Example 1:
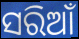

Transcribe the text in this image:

ସରିଆଁ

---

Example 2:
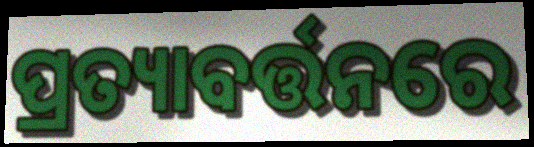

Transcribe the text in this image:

ପ୍ରତ୍ୟାବର୍ତ୍ତନରେ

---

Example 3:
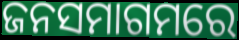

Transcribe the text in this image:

ଜନସମାଗମରେ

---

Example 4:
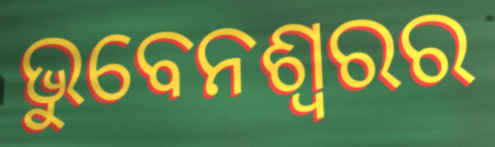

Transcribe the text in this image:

ଭୁବେନଶ୍ବରର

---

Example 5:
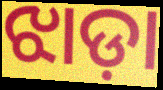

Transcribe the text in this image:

ଝାଡ଼ା